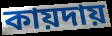
কায়দায়